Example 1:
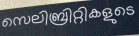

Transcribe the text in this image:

സെലിബ്രിറ്റികളുടെ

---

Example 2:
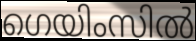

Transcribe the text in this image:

ഗെയിംസിൽ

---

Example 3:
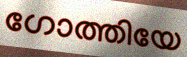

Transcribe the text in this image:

ഗോത്തിയേ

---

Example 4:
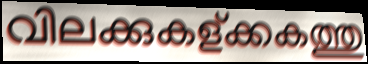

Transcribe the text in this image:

വിലക്കുകള്ക്കകത്തു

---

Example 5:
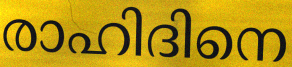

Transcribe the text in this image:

രാഹിദിനെ